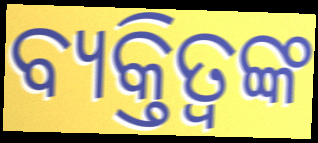
ବ୍ୟକ୍ତିତ୍ବଙ୍କ